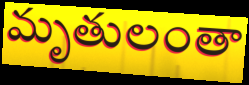
మృతులంతా